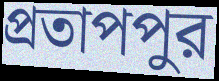
প্রতাপপুর